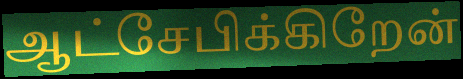
ஆட்சேபிக்கிறேன்